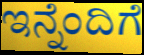
ಇನ್ನೆಂದಿಗೆ